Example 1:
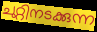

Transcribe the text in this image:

ചുറ്റിനടക്കുന്ന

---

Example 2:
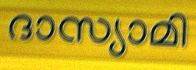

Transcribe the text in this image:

ദാസ്യാമി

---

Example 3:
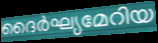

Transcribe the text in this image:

ദൈർഘ്യമേറിയ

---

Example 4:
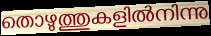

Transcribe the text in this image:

തൊഴുത്തുകളിൽനിന്നു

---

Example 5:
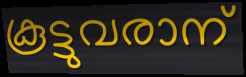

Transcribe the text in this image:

കൂട്ടുവരാന്